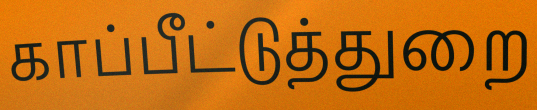
காப்பீட்டுத்துறை